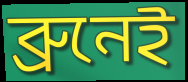
ব্রুনেই